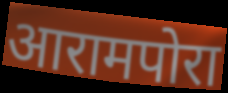
आरामपोरा